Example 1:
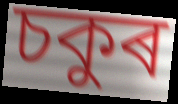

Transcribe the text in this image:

চকুৰ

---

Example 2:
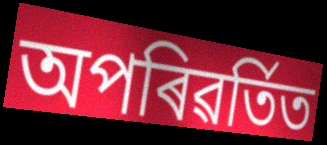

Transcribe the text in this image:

অপৰিৱৰ্তিত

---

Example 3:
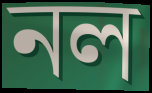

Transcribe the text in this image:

নল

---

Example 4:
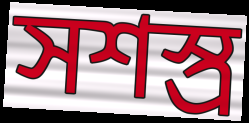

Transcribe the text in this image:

সশস্ত্ৰ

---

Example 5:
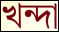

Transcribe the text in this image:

খন্দা